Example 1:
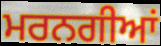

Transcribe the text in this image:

ਮਰਨਗੀਆਂ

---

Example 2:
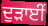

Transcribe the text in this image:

ਦੁੜਾਈਂ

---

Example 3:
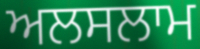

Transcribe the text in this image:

ਅਲਸਲਾਮ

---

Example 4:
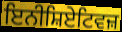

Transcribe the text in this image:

ਇਨੀਸ਼ਿਏਟਿਵਜ਼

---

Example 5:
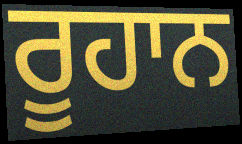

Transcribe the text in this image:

ਰੂਹਾਨ